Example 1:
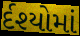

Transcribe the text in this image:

ર્દશ્યોમાં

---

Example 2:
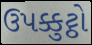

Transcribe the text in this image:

ઉપક્કુટ્ઠો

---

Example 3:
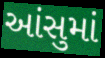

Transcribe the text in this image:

આંસુમાં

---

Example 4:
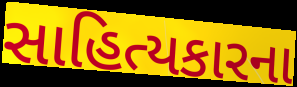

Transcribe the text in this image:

સાહિત્યકારના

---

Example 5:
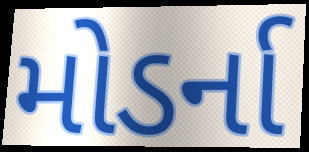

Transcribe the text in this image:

મોડર્ના